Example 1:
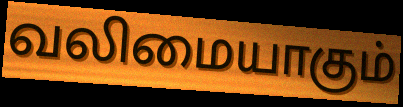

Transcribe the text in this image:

வலிமையாகும்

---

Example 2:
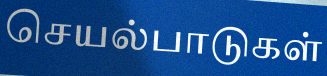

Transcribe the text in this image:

செயல்பாடுகள்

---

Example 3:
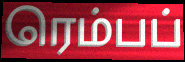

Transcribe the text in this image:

ரெம்பப்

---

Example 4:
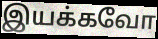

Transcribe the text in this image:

இயக்கவோ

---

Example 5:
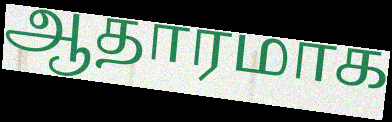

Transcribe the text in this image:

ஆதாரமாக